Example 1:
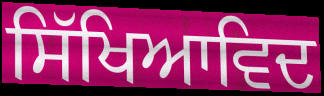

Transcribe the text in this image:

ਸਿੱਖਿਆਵਿਦ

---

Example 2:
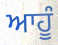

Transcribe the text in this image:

ਆਹੂੰ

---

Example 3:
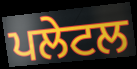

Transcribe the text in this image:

ਪਲੇਟਲ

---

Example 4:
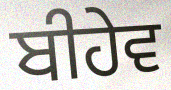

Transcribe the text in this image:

ਬੀਹੇਵ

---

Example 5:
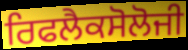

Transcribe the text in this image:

ਰਿਫਲੈਕਸੋਲੋਜੀ